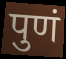
पुणं